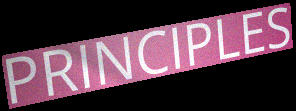
PRINCIPLES